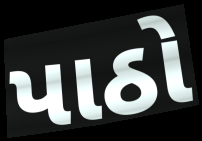
પાઠો